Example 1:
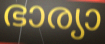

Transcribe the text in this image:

ഭാര്യാ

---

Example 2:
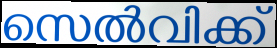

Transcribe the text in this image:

സെൽവിക്ക്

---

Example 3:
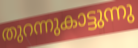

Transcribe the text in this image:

തുറന്നുകാട്ടുന്നു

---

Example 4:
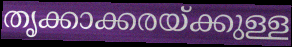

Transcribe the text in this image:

തൃക്കാക്കരയ്ക്കുള്ള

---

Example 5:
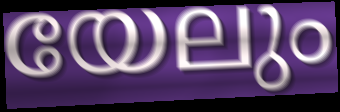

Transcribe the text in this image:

യേലും